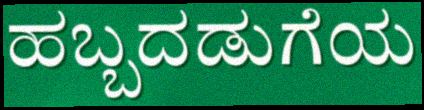
ಹಬ್ಬದಡುಗೆಯ